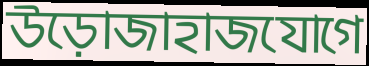
উড়োজাহাজযোগে